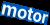
motor